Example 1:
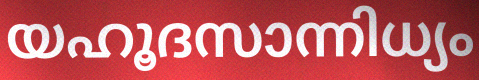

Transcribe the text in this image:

യഹൂദസാന്നിധ്യം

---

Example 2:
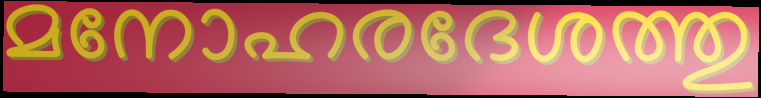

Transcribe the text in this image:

മനോഹരദേശത്തു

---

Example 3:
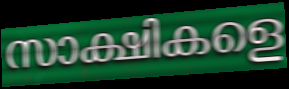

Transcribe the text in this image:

സാക്ഷികളെ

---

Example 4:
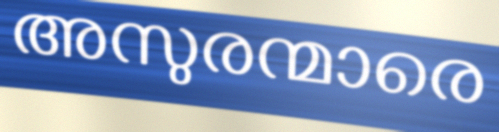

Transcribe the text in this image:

അസുരന്മാരെ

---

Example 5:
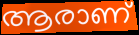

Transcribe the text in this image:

ആരാണ്